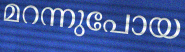
മറന്നുപോയ